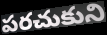
పరచుకుని